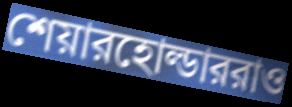
শেয়ারহোল্ডাররাও